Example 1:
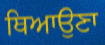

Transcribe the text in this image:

ਥਿਆਉਣਾ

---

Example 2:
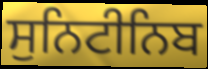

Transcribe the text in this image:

ਸੁਨਿਟੀਨਿਬ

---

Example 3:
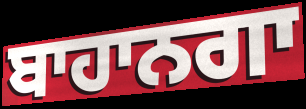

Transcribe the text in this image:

ਬਾਹਾਨਗਾ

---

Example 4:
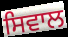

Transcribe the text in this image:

ਸਿਵਾਲ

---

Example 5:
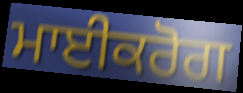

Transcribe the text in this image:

ਮਾਈਕਰੋਗ